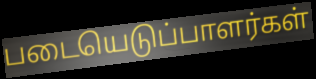
படையெடுப்பாளர்கள்